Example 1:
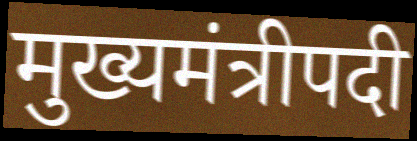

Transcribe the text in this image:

मुख्यमंत्रीपदी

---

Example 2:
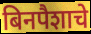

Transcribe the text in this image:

बिनपैशाचे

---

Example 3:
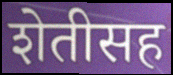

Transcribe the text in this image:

शेतीसह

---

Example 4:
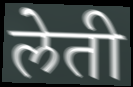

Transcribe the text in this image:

लेती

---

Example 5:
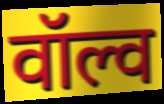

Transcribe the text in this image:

वॉल्व